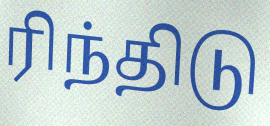
ரிந்திடு